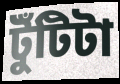
টুঁটিটা